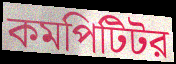
কমপিটিটর